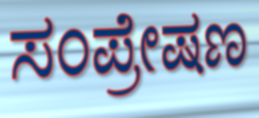
ಸಂಪ್ರೇಷಣ